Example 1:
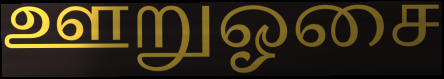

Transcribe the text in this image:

ஊறுஓசை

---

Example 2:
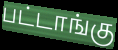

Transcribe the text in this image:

பட்டாங்கு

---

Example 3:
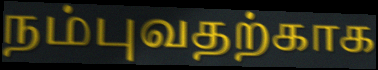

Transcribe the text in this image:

நம்புவதற்காக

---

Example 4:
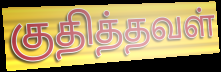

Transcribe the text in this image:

குதித்தவள்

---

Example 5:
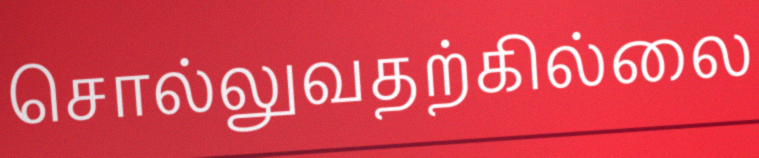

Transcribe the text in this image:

சொல்லுவதற்கில்லை